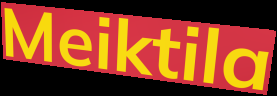
Meiktila